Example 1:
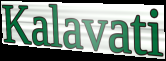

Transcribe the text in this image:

Kalavati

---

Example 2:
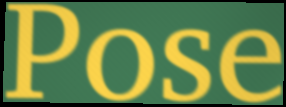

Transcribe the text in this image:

Pose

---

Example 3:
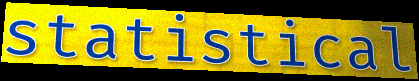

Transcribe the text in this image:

statistical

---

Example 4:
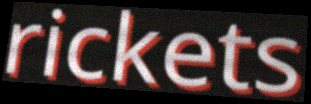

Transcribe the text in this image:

rickets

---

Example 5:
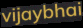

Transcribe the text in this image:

vijaybhai